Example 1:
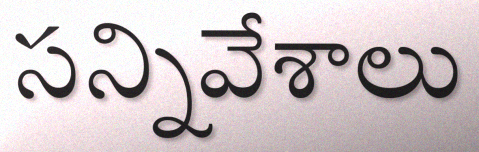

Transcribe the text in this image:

సన్నివేశాలు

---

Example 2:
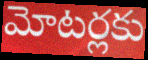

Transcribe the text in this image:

మోటర్లకు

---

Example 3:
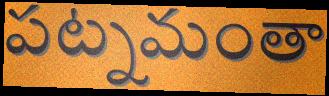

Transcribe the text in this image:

పట్నమంతా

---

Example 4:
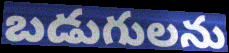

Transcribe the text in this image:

బడుగులను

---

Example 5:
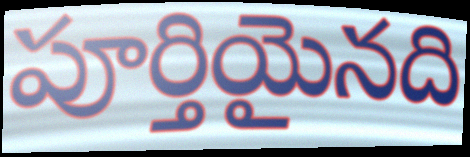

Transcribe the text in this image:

పూర్తియైనది